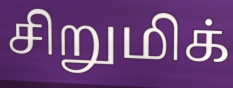
சிறுமிக்